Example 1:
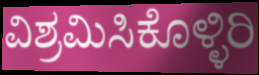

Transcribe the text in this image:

ವಿಶ್ರಮಿಸಿಕೊಳ್ಳಿರಿ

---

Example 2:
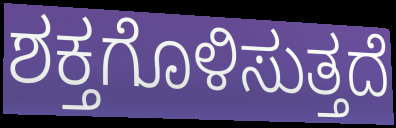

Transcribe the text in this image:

ಶಕ್ತಗೊಳಿಸುತ್ತದೆ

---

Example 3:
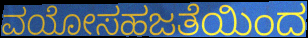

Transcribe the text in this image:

ವಯೋಸಹಜತೆಯಿಂದ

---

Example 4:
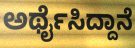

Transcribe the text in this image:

ಅರ್ಥೈಸಿದ್ದಾನೆ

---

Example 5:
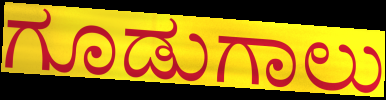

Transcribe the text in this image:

ಗೂಡುಗಾಲು